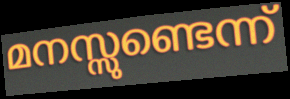
മനസ്സുണ്ടെന്ന്